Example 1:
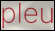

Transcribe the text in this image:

pleu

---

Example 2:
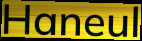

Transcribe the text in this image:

Haneul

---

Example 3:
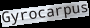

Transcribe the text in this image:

Gyrocarpus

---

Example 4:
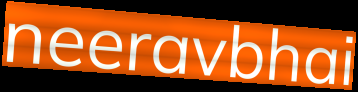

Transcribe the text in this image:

neeravbhai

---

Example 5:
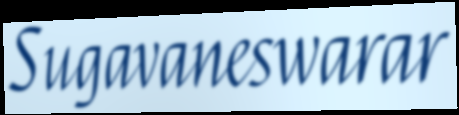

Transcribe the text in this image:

Sugavaneswarar